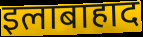
इलाबाहाद